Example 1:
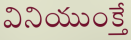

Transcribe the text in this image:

వినియుంక్తే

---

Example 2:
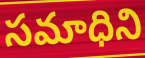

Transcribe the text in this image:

సమాధిని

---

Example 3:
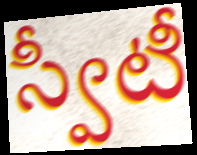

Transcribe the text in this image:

స్వీటీ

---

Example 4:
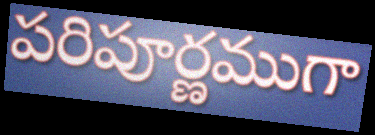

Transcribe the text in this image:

పరిపూర్ణముగా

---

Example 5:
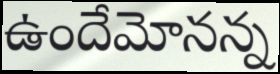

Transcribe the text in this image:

ఉందేమోనన్న